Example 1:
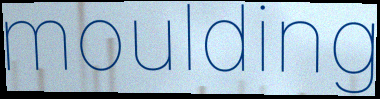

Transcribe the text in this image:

moulding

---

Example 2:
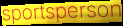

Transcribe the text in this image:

sportsperson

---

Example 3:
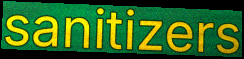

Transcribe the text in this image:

sanitizers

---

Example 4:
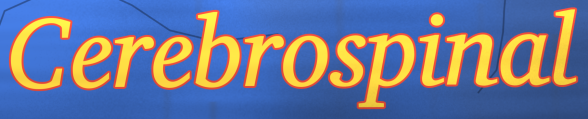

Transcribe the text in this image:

Cerebrospinal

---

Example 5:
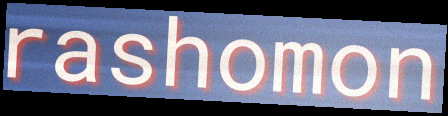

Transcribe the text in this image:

rashomon